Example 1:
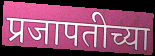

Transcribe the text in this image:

प्रजापतीच्या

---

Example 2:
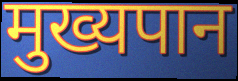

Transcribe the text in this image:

मुख्यपान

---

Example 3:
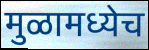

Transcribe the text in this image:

मुळामध्येच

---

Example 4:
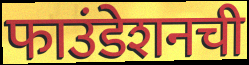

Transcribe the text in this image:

फाउंडेशनची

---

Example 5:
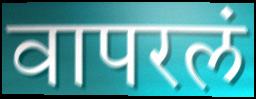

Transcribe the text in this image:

वापरलं